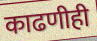
काढणीही